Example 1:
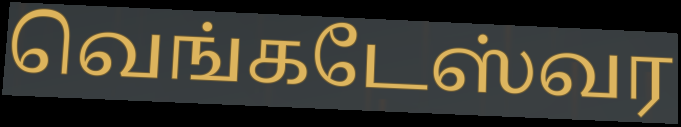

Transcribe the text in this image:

வெங்கடேஸ்வர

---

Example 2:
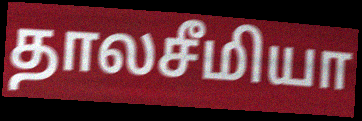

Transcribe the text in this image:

தாலசீமியா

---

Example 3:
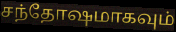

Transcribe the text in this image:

சந்தோஷமாகவும்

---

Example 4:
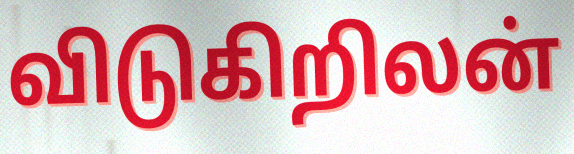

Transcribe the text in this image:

விடுகிறிலன்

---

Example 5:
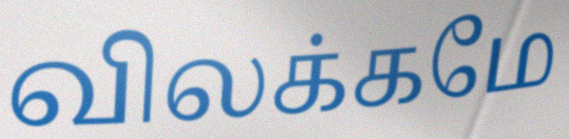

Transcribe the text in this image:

விலக்கமே